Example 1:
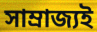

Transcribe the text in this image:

সাম্ৰাজ্যই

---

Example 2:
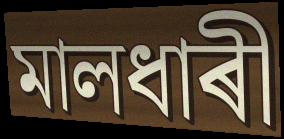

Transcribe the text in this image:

মালধাৰী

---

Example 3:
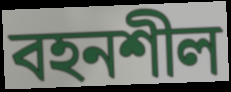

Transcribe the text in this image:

বহনশীল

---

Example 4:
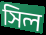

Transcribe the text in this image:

সিল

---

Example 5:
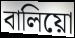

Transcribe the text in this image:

বালিয়ো